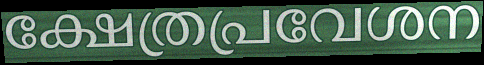
ക്ഷേത്രപ്രവേശന